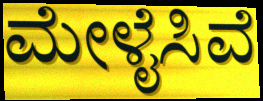
ಮೇಳೈಸಿವೆ